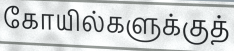
கோயில்களுக்குத்